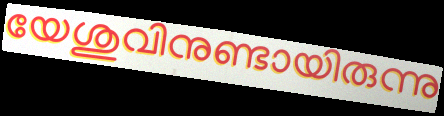
യേശുവിനുണ്ടായിരുന്നു